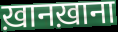
ख़ानख़ाना